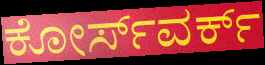
ಕೋರ್ಸ್‌ವರ್ಕ್